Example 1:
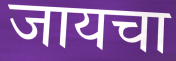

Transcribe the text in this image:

जायचा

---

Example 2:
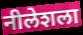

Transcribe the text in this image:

नीलेशला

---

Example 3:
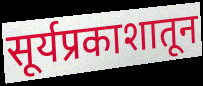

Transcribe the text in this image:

सूर्यप्रकाशातून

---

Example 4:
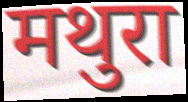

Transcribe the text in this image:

मथुरा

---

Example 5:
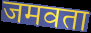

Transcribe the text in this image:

जमवता